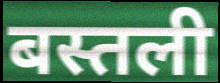
बस्तली